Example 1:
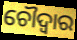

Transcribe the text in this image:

ଚୌଦ୍ଵାର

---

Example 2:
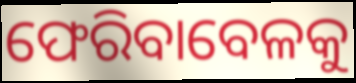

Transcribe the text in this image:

ଫେରିବାବେଳକୁ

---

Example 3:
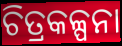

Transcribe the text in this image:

ଚିତ୍ରକଳ୍ପନା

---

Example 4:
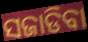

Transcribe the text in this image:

ସଜାଡିବା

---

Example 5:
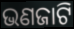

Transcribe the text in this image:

ଭଣଜାଟି